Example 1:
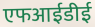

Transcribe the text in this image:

एफआईडीई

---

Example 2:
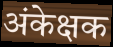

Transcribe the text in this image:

अंकेक्षक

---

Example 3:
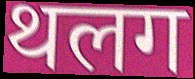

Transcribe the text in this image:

थलग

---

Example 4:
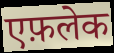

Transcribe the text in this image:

एफ़लेक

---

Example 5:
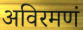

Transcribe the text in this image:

अविरमणं